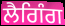
ਲੈਗਿੰਗ